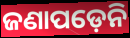
ଜଣାପଡ଼େନି